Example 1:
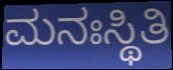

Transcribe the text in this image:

ಮನಃಸ್ಥಿತಿ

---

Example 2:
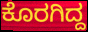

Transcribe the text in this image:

ಕೊರಗಿದ್ದ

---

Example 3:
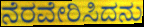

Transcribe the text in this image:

ನೆರವೇರಿಸಿದನು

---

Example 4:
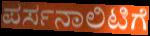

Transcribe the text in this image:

ಪರ್ಸನಾಲಿಟಿಗೆ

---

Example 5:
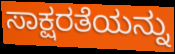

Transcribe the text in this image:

ಸಾಕ್ಷರತೆಯನ್ನು